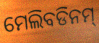
ମେଲିବଡିନମ୍